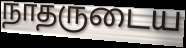
நாதருடைய